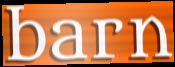
barn